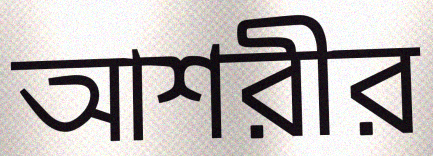
আশরীর